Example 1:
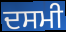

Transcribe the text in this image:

ਦਸਮੀ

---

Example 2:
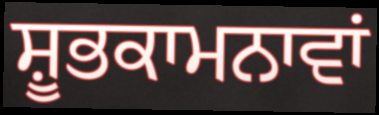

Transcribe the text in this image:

ਸ਼ੂਭਕਾਮਨਾਵਾਂ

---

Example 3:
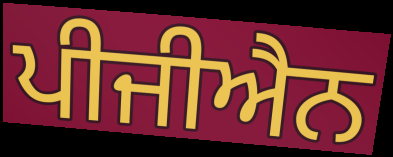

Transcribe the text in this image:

ਪੀਜੀਐਨ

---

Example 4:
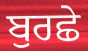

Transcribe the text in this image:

ਬੁਰਛੇ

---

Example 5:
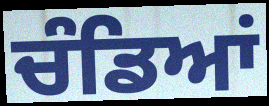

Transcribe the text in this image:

ਚੰਡਿਆਂ